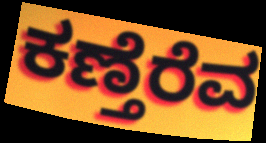
ಕಣ್ತೆರೆವ